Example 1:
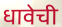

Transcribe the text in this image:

धावेची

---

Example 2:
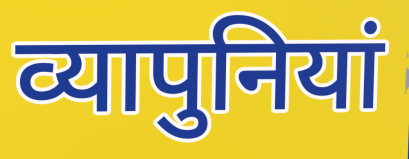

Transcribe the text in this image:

व्यापुनियां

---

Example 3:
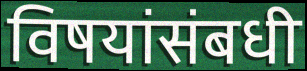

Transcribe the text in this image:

विषयांसंबधी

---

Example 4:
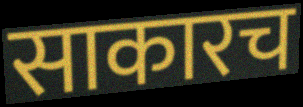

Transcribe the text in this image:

साकारच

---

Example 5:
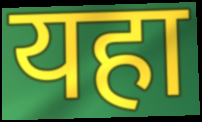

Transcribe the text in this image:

यहा